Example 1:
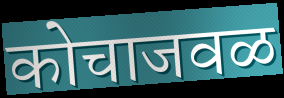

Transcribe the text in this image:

कोचाजवळ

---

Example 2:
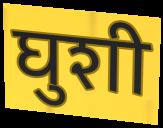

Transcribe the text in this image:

घुशी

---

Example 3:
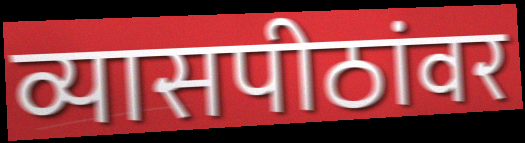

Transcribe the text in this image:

व्यासपीठांवर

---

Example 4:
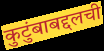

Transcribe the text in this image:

कुटुंबाबद्दलची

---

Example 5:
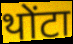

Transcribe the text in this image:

थोंटा